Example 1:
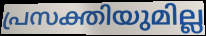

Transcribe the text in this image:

പ്രസക്തിയുമില്ല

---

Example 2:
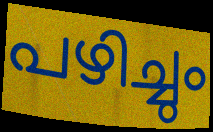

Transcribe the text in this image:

പഴിച്ചും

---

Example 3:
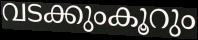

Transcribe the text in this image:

വടക്കുംകൂറും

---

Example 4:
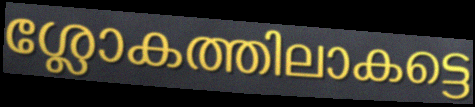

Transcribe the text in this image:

ശ്ലോകത്തിലാകട്ടെ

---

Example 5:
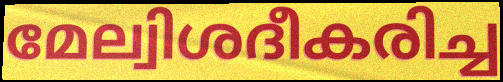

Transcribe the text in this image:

മേല്വിശദീകരിച്ച